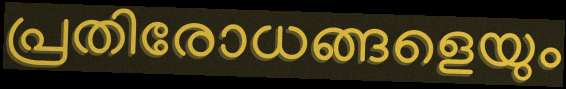
പ്രതിരോധങ്ങളെയും